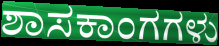
ಶಾಸಕಾಂಗಗಳು